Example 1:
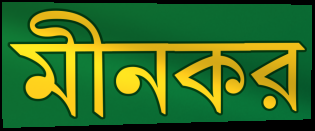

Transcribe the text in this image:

মীনকর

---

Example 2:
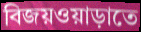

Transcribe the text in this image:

বিজয়ওয়াড়াতে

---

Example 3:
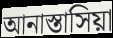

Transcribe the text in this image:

আনাস্তাসিয়া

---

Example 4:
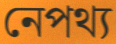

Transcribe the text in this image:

নেপথ্য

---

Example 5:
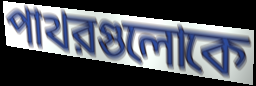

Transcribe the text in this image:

পাথরগুলোকে